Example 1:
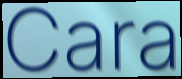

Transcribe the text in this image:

Cara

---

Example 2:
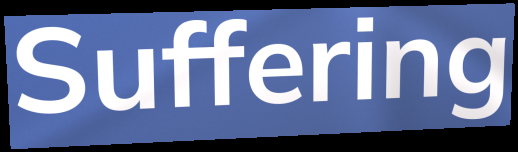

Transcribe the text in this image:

Suffering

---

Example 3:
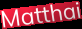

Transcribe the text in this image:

Matthai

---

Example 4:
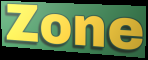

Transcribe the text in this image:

Zone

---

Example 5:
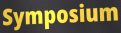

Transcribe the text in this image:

Symposium